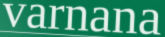
varnana